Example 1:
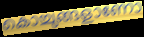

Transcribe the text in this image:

കൊച്ചുങ്ങളാണോ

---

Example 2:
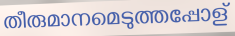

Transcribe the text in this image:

തീരുമാനമെടുത്തപ്പോള്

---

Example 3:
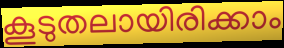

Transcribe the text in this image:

കൂടുതലായിരിക്കാം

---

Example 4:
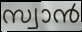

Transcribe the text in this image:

സ്വാൻ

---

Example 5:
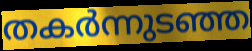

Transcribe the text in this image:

തകർന്നുടഞ്ഞ